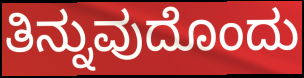
ತಿನ್ನುವುದೊಂದು